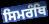
ਸਿਮਰੰਥਿ